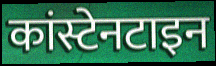
कांस्टेनटाइन